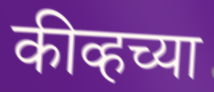
कीव्हच्या